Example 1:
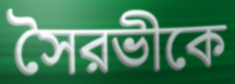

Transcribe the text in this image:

সৈরভীকে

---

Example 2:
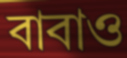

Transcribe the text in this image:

বাবাও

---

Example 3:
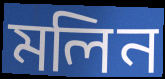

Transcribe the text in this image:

মলিন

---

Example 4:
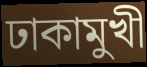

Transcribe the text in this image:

ঢাকামুখী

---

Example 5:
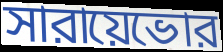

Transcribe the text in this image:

সারায়েভোর